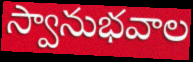
స్వానుభవాల